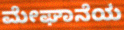
ಮೇಘಾನೆಯ